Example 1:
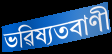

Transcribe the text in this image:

ভৱিষ্যতবাণী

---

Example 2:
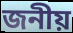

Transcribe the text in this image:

জনীয়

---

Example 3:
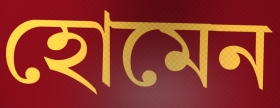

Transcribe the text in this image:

হোমেন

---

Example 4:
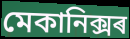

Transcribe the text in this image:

মেকানিক্সৰ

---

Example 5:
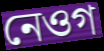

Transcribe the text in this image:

নেওগ